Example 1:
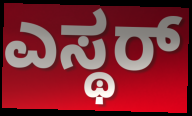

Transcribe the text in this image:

ಎಸ್ಥರ್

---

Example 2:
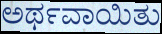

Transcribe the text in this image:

ಅರ್ಥವಾಯಿತು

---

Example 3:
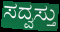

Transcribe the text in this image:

ಸದ್ವಸ್ತು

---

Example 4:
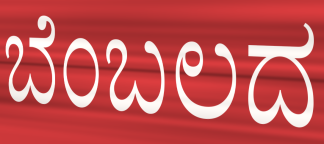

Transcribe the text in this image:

ಬೆಂಬಲದ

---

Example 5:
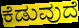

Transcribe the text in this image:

ಕೆಡುವುದೆ